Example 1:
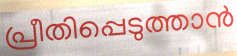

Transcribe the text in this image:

പ്രീതിപ്പെടുത്താൻ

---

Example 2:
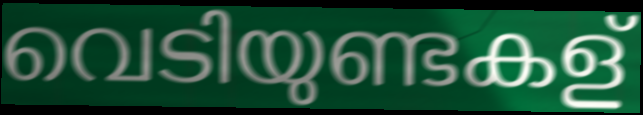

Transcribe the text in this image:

വെടിയുണ്ടകള്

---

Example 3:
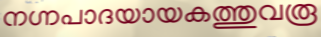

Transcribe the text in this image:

നഗ്നപാദയായകത്തുവരൂ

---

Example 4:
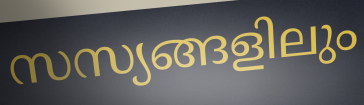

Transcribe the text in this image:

സസ്യങ്ങളിലും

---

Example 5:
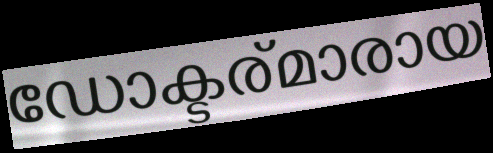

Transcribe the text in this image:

ഡോക്ടര്മാരായ